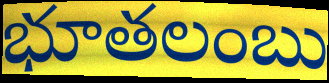
భూతలంబు